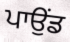
ਪਾਉਂਡ